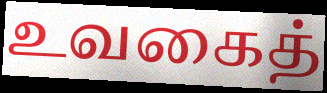
உவகைத்